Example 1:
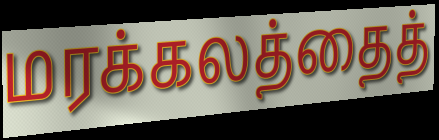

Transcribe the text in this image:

மரக்கலத்தைத்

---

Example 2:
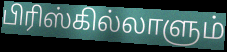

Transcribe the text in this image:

பிரிஸ்கில்லாளும்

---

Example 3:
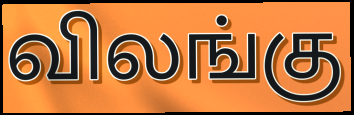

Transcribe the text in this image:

விலங்கு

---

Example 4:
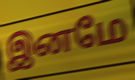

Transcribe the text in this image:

இனமே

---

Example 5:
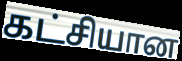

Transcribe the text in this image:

கட்சியான